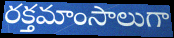
రక్తమాంసాలుగా